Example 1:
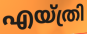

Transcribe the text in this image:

എയ്ത്രി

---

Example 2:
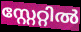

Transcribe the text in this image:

സ്റ്റേറ്റിൽ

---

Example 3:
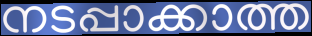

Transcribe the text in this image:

നടപ്പാക്കാത്ത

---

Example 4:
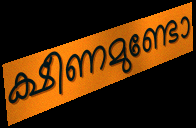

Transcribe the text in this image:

ക്ഷീണമുണ്ടോ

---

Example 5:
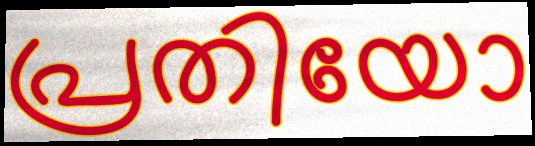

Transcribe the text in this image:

പ്രതിയോ